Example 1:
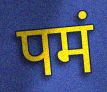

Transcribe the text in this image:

पमं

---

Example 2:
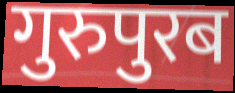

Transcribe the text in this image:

गुरुपुरब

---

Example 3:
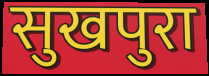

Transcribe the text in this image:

सुखपुरा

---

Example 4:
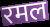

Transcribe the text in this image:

रमल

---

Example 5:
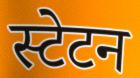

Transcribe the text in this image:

स्टेटन